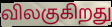
விலகுகிறது